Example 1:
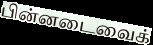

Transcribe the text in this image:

பின்னடைவைக்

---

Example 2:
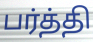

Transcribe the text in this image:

பர்த்தி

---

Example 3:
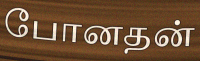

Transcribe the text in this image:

போனதன்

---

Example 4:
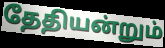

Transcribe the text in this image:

தேதியன்றும்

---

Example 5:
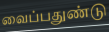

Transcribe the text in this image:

வைப்பதுண்டு